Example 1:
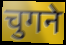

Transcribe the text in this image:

चुगने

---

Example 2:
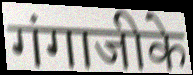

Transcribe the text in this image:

गंगाजीके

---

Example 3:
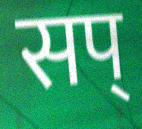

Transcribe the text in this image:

सप्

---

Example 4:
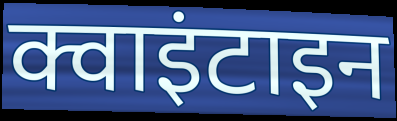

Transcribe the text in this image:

क्वाइंटाइन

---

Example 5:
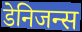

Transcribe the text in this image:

डेनिजन्स